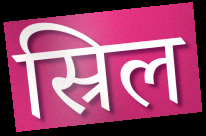
स्रिल